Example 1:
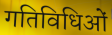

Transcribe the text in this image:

गतिविधिओं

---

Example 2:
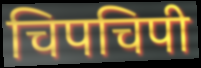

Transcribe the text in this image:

चिपचिपी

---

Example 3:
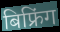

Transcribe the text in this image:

बिफ्रिंग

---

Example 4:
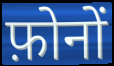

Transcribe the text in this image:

फ़ोनों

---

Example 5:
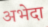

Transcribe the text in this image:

अभेदा